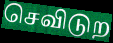
செவிடுற